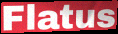
Flatus